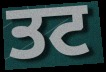
ਤਟ